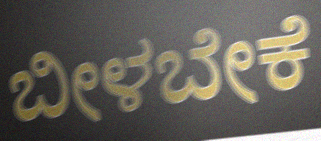
ಬೀಳಬೇಕೆ